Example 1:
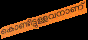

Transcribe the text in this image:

കൊണ്ടിട്ടുള്ളവനാണ്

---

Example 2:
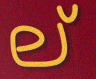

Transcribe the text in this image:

ല്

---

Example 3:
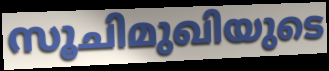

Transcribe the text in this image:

സൂചിമുഖിയുടെ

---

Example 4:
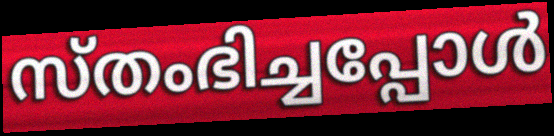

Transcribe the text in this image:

സ്തംഭിച്ചപ്പോൾ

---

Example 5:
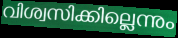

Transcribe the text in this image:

വിശ്വസിക്കില്ലെന്നും